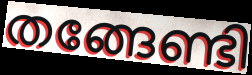
തങ്ങേണ്ടി